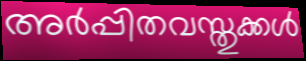
അർപ്പിതവസ്തുക്കൾ